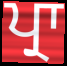
ਪ੍ਰਾ